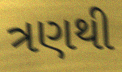
ત્રણથી